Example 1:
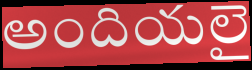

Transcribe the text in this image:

అందియలై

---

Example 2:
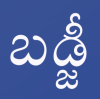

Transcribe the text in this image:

బడ్జీ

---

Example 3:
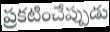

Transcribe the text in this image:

ప్రకటించేప్పుడు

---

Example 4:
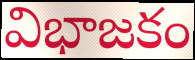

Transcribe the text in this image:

విభాజకం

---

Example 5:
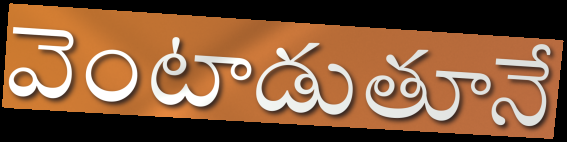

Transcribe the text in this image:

వెంటాడుతూనే